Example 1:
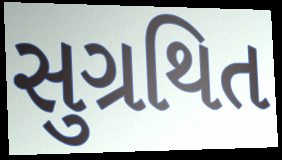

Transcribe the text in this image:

સુગ્રથિત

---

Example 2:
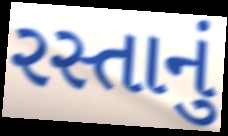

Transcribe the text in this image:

રસ્તાનું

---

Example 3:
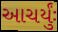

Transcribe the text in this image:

આચર્યુંઃ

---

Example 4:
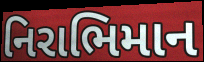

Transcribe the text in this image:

નિરાભિમાન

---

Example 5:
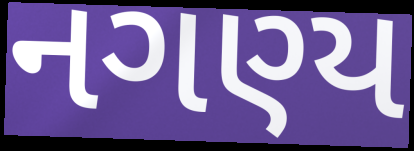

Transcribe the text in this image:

નગણ્ય